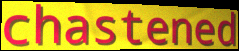
chastened